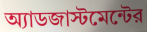
অ্যাডজাস্টমেন্টের